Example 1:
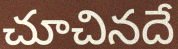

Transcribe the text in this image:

చూచినదే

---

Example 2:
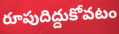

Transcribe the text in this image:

రూపుదిద్దుకోవటం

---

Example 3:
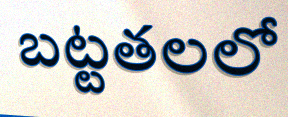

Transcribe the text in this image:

బట్టతలలో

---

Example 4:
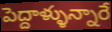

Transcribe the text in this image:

పెద్దాళ్ళున్నారే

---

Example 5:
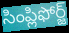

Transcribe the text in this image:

సింప్లిఫోర్జ్